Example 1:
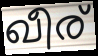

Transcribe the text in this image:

ഖീര്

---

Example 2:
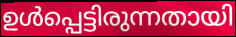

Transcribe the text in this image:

ഉൾപ്പെട്ടിരുന്നതായി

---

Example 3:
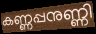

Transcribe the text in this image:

കണ്ണപ്പനുണ്ണി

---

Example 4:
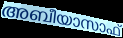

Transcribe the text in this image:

അബീയാസാഫ്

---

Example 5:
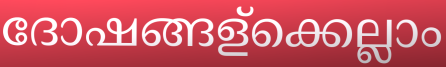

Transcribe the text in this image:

ദോഷങ്ങള്ക്കെല്ലാം